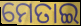
ମେତାଇ